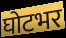
घोटभर